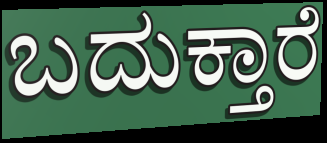
ಬದುಕ್ತಾರೆ